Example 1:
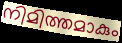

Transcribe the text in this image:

നിമിത്തമാകും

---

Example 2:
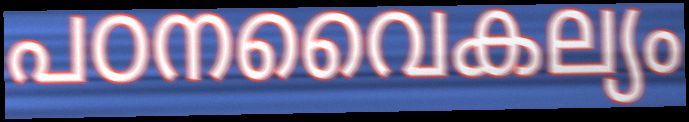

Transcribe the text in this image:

പഠനവൈകല്യം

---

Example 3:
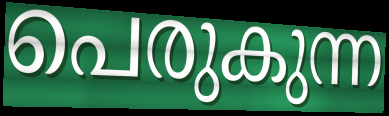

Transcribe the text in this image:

പെരുകുന്ന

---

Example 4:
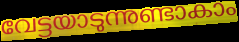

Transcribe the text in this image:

വേട്ടയാടുന്നുണ്ടാകാം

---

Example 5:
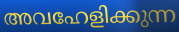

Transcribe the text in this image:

അവഹേളിക്കുന്ന